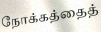
நோக்கத்தைத்